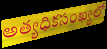
అత్యధికసంఖ్యలో